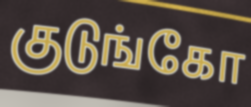
குடுங்கோ